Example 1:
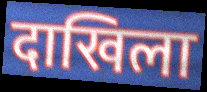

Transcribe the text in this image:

दाखिला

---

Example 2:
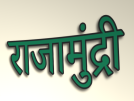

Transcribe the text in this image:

राजामुंद्री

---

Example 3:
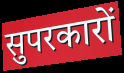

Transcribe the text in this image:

सुपरकारों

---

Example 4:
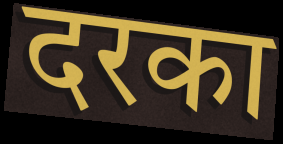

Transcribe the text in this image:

दरका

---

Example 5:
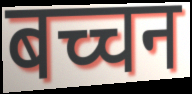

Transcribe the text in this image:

बच्चन